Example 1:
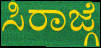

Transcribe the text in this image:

ಸಿರಾಜ್ಗೆ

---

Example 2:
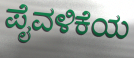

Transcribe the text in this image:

ಪೈವಳಿಕೆಯ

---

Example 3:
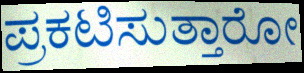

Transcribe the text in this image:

ಪ್ರಕಟಿಸುತ್ತಾರೋ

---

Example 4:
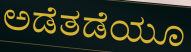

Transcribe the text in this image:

ಅಡೆತಡೆಯೂ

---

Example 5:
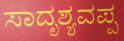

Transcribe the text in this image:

ಸಾದೃಶ್ಯವಪ್ಪ